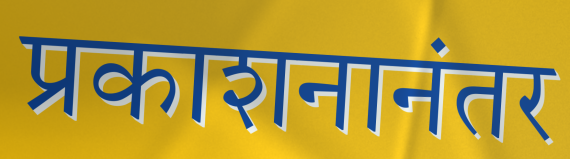
प्रकाशनानंतर